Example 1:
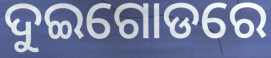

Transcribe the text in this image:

ଦୁଇଗୋଡରେ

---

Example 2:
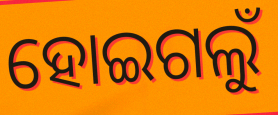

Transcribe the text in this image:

ହୋଇଗଲୁଁ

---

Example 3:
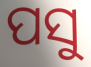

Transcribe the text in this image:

ପସୁ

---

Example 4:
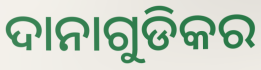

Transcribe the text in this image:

ଦାନାଗୁଡିକର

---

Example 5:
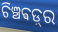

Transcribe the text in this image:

ଚିଞ୍ଚଵଡ଼୍‌ର